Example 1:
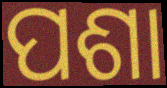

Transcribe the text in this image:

ପଶା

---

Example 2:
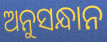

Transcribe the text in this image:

ଅନୁସନ୍ଧାନ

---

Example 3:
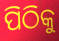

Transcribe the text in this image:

ପିଠିକୁ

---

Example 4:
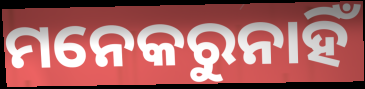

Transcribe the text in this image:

ମନେକରୁନାହିଁ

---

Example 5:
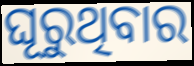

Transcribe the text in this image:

ଘୂରୁଥିବାର